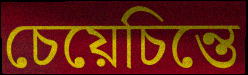
চেয়েচিন্তে